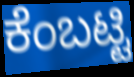
ಕೆಂಬಟ್ಟಿ